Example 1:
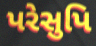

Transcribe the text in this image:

પરેસુપિ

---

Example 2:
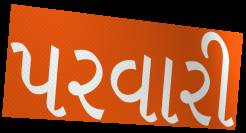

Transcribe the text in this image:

પરવારી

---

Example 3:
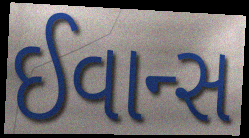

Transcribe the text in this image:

ઈવાન્સ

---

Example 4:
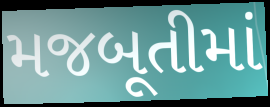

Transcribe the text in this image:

મજબૂતીમાં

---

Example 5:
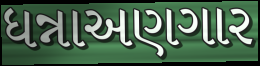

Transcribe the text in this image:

ધન્નાઅણગાર